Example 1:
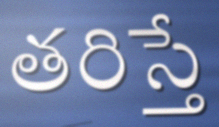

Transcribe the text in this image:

తరిస్తే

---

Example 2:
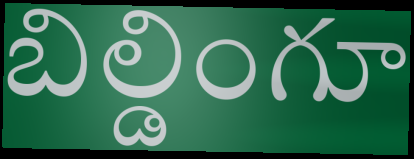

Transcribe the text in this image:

బిల్డింగూ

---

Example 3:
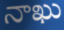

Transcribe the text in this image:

నాఖు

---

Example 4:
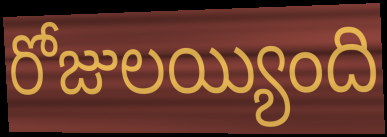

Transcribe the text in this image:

రోజులయ్యింది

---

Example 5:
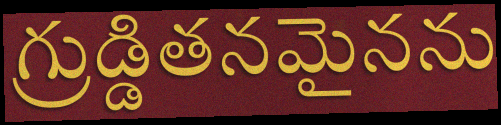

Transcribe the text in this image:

గ్రుడ్డితనమైనను